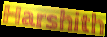
Harshith